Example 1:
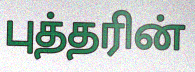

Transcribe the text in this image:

புத்தரின்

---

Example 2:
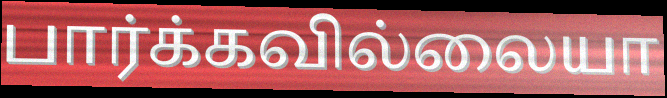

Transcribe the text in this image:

பார்க்கவில்லையா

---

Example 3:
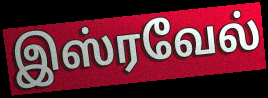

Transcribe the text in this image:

இஸ்ரவேல்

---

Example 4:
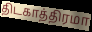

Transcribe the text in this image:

திடகாத்திரமா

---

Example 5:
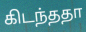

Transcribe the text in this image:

கிடந்ததா